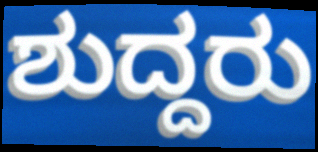
ಶುದ್ದರು